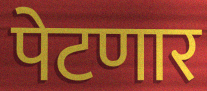
पेटणार